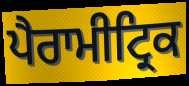
ਪੈਰਾਮੀਟ੍ਰਿਕ